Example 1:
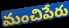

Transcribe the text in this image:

మంచిపేరు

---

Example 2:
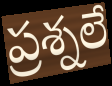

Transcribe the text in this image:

ప్రశ్నలే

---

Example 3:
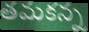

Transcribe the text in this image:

తమకన్న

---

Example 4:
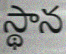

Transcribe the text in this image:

స్థాన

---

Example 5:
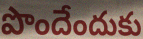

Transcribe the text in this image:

పొందేందుకు